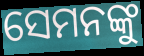
ସେମନଙ୍କୁ